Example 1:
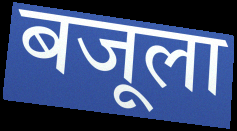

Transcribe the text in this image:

बजूला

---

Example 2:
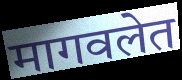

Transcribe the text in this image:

मागवलेत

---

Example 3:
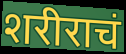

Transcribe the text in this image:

शरीराचं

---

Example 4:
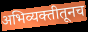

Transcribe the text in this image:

अभिव्यक्तीतूनच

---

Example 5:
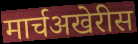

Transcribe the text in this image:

मार्चअखेरीस